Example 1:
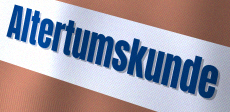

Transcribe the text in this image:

Altertumskunde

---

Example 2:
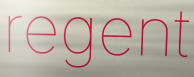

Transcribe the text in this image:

regent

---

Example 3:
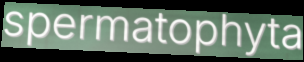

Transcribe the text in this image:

spermatophyta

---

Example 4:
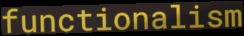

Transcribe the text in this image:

functionalism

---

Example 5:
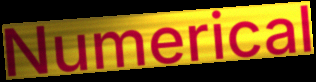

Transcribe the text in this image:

Numerical